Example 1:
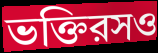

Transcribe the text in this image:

ভক্তিরসও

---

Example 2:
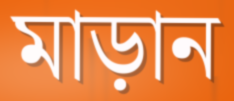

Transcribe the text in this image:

মাড়ান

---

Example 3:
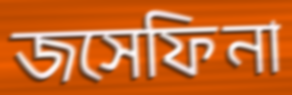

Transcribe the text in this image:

জসেফিনা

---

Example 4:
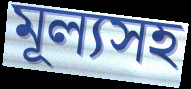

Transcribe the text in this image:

মূল্যসহ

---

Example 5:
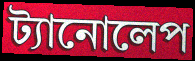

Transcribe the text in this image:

ট্যানোলেপ